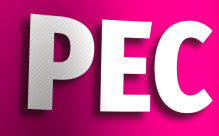
PEC